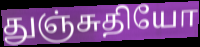
துஞ்சுதியோ